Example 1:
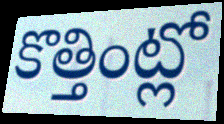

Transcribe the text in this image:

కొత్తింట్లో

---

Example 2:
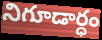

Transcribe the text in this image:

నిగూడార్ధం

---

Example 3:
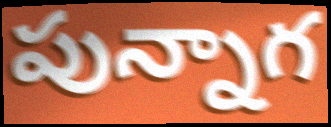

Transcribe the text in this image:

పున్నాగ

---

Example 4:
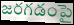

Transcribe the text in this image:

జరగడంపై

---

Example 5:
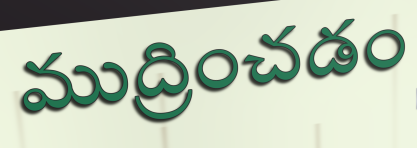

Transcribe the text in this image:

ముద్రించడం